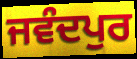
ਜਵੰਦਪੁਰ